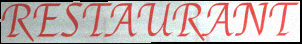
RESTAURANT